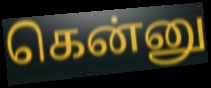
கென்னு